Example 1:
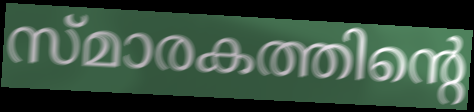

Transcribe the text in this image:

സ്മാരകത്തിന്റെ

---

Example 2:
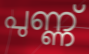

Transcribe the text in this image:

പുണ്ണ്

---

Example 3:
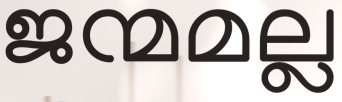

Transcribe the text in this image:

ജന്മമല്ല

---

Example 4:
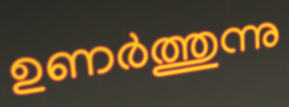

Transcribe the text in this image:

ഉണർത്തുന്നു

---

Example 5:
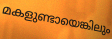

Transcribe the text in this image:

മകളുണ്ടായെങ്കിലും